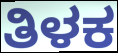
ತಿಳಕ